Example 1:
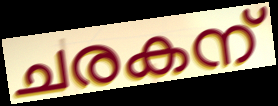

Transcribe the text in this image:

ചരകന്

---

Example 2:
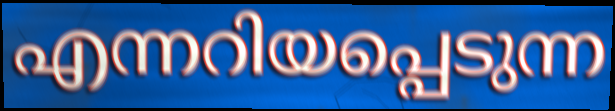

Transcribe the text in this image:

എന്നറിയപ്പെടുന്ന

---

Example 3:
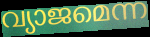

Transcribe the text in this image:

വ്യാജമെന്ന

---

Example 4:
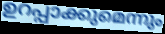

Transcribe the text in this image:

ഉറപ്പാക്കുമെന്നും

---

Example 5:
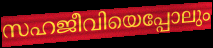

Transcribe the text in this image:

സഹജീവിയെപ്പോലും